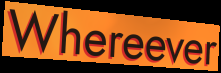
Whereever